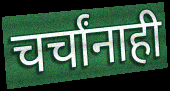
चर्चांनाही